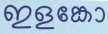
ഇളങ്കോ